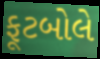
ફૂટબોલે